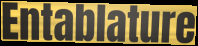
Entablature